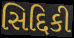
સિદ્દિકી